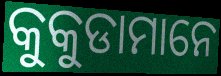
କୁକୁଡାମାନେ